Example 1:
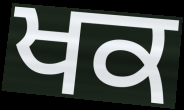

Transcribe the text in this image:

ਖਕ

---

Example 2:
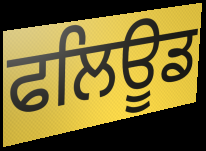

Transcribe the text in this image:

ਫਲਿਊਡ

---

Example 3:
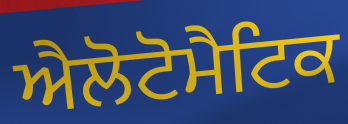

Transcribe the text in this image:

ਐਲੋਟੋਮੈਟਿਕ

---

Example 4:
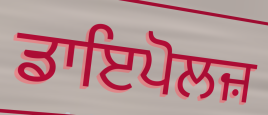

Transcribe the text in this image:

ਡਾਇਪੋਲਜ਼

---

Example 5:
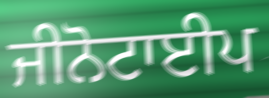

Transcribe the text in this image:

ਜੀਨੋਟਾਈਪ